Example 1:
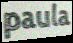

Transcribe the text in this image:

paula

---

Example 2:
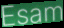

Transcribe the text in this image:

Esam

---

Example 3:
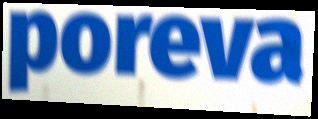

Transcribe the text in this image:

poreva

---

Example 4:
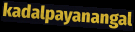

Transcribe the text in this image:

kadalpayanangal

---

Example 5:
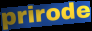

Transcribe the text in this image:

prirode